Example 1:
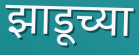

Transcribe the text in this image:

झाडूच्या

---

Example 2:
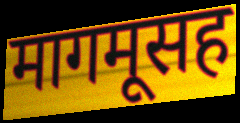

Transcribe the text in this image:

मागमूसह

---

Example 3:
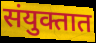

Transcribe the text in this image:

संयुक्तात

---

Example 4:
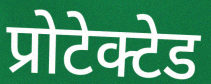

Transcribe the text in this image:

प्रोटेक्टेड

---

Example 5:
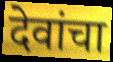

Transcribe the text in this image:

देवांचा